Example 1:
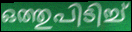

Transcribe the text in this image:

ഒത്തുപിടിച്ച്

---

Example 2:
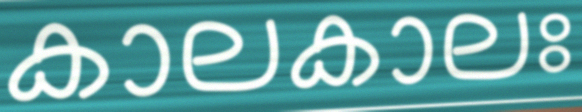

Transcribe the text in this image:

കാലകാലഃ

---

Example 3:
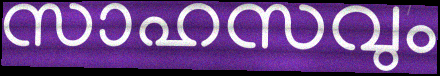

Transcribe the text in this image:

സാഹസവും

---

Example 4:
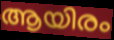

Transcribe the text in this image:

ആയിരം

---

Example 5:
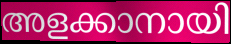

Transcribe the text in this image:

അളക്കാനായി